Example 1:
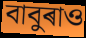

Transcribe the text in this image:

বাবুৰাও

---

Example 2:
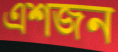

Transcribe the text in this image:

এশজন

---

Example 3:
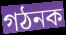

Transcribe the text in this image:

গঠনক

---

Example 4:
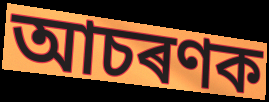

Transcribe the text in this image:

আচৰণক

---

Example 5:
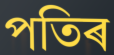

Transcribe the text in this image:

পতিৰ